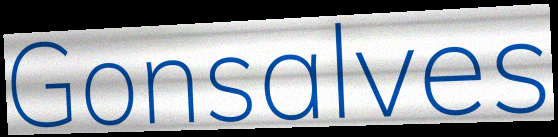
Gonsalves